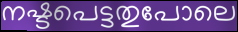
നഷ്ടപെട്ടതുപോലെ